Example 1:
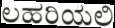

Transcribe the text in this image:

ಲಹರಿಯಲಿ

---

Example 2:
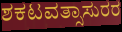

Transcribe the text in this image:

ಶಕಟವತ್ಸಾಸುರರ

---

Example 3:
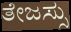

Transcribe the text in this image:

ತೇಜಸ್ಸು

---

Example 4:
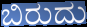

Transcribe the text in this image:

ಬಿರುದು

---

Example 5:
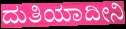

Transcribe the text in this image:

ದುತಿಯಾದೀನಿ